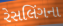
રેસલિંગના